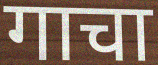
गाचा